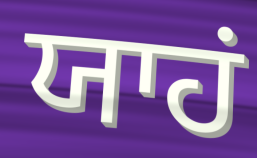
ਯਾਹਂ